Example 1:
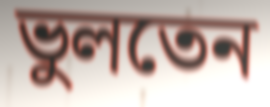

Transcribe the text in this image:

ভুলতেন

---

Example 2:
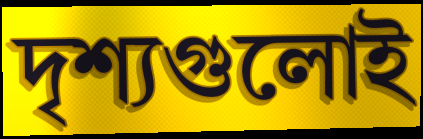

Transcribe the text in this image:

দৃশ্যগুলোই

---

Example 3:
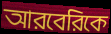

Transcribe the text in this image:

আরবেরিকে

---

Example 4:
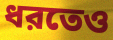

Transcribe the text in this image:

ধরতেও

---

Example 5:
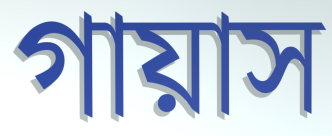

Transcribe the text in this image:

গায়াস